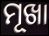
ମୂଖା